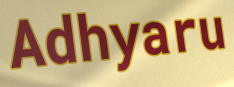
Adhyaru